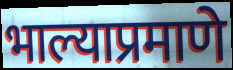
भाल्याप्रमाणे